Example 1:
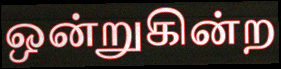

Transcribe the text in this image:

ஒன்றுகின்ற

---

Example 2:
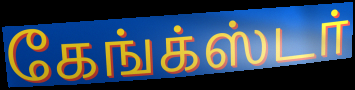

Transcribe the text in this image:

கேங்க்ஸ்டர்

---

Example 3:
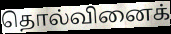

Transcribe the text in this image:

தொல்வினைக்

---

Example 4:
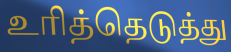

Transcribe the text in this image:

உரித்தெடுத்து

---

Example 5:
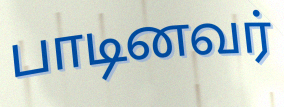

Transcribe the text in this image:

பாடினவர்